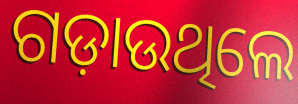
ଗଡ଼ାଉଥିଲେ